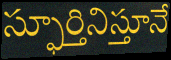
స్ఫూర్తినిస్తూనే